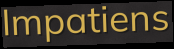
Impatiens